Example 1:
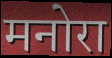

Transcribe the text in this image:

मनोरा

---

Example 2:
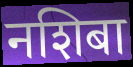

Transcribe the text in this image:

नशिबा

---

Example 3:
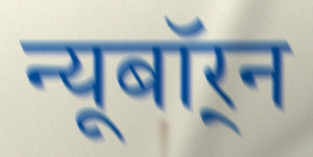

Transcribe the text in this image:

न्यूबॉर्न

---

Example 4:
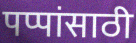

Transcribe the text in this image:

पप्पांसाठी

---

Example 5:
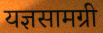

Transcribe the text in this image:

यज्ञसामग्री